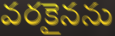
వరకైనను